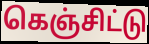
கெஞ்சிட்டு